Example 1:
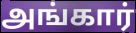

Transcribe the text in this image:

அங்கார்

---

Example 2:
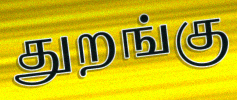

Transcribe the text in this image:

துறங்கு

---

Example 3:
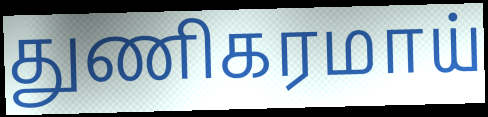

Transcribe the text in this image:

துணிகரமாய்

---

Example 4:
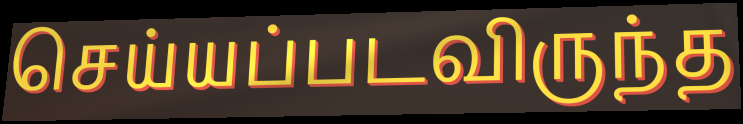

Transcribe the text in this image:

செய்யப்படவிருந்த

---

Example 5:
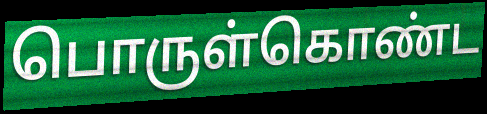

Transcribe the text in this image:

பொருள்கொண்ட